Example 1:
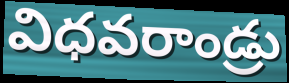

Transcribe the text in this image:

విధవరాండ్రు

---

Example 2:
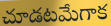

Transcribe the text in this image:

చూడటమేగాక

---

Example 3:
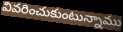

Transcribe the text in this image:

వివరించుకుంటున్నాము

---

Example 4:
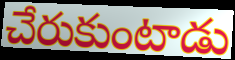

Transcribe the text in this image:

చేరుకుంటాడు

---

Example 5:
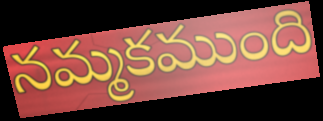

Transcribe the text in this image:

నమ్మకముంది